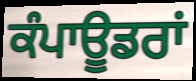
ਕੰਪਾਊਡਰਾਂ